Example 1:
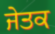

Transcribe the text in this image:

ਜੇਤਕ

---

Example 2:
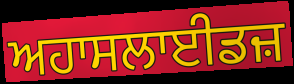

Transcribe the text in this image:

ਅਹਾਸਲਾਈਡਜ਼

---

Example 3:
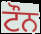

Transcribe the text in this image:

ਟੌਨ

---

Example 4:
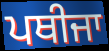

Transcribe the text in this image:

ਪਥੀਜਾ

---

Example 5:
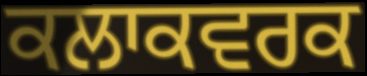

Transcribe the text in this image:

ਕਲਾਕਵਰਕ